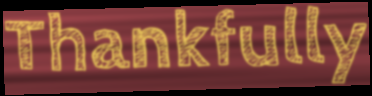
Thankfully